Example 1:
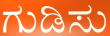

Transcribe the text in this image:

ಗುಡಿಸು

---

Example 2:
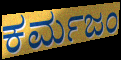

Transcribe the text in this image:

ಕರ್ಮಜಂ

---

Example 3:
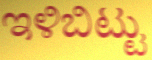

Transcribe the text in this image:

ಇಳಿಬಿಟ್ಟು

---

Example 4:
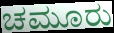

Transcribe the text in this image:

ಚಮೂರು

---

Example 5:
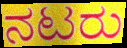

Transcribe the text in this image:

ನಟರು